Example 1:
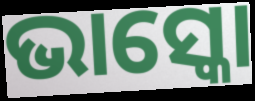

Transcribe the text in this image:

ଭାସ୍କୋ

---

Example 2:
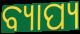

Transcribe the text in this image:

ବ୍ଯାପ୍ୟ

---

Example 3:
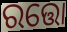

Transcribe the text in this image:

ରତ୍ତୋ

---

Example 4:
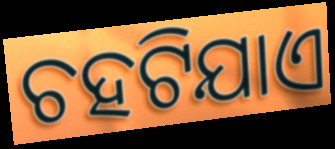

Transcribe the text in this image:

ଚହଟିଯାଏ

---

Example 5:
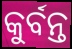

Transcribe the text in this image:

କୁର୍ବନ୍ତ